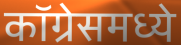
कॉग्रेसमध्ये